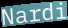
Nardi